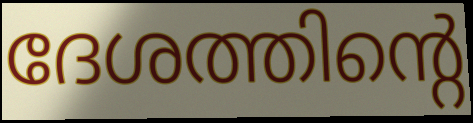
ദേശത്തിന്റെ